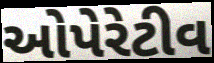
ઓપેરેટીવ